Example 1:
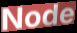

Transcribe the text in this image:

Node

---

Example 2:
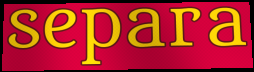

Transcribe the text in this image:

separa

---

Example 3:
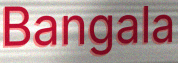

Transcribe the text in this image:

Bangala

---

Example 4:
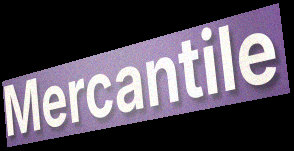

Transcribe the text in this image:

Mercantile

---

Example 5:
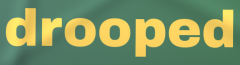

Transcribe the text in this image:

drooped